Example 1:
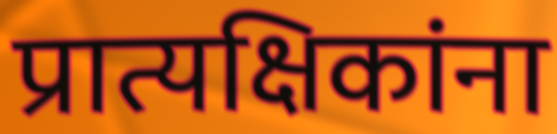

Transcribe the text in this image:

प्रात्यक्षिकांना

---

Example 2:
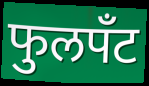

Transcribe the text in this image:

फुलपँट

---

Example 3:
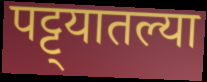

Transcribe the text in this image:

पट्ट्यातल्या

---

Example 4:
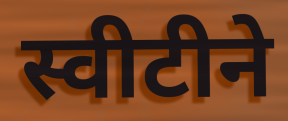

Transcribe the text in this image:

स्वीटीने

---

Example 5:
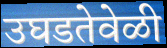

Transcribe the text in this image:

उघडतेवेळी